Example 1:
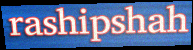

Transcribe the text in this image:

rashipshah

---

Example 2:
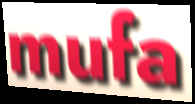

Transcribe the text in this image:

mufa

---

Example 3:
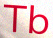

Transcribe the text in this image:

Tb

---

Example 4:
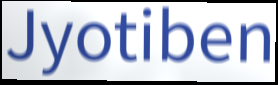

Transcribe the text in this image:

Jyotiben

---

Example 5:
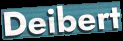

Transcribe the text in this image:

Deibert